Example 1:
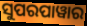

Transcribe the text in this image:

ସୁପରପାୱାର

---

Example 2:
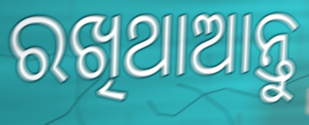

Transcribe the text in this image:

ରଖିଥାଆନ୍ତୁ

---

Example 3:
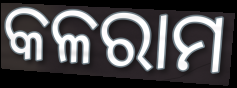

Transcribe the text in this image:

କଳରାମ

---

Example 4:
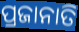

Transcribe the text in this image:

ପ୍ରଜାନାତି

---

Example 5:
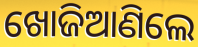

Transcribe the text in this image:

ଖୋଜିଆଣିଲେ